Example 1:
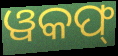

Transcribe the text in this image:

ୱକଫ୍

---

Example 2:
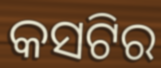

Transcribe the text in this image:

କସଟିର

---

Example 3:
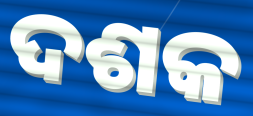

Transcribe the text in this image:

ଦଶକ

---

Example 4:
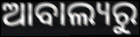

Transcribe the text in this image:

ଆବାଲ୍ୟରୁ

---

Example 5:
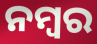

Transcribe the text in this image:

ନମ୍ବର